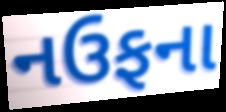
નઉફના